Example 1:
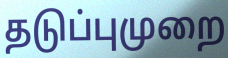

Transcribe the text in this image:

தடுப்புமுறை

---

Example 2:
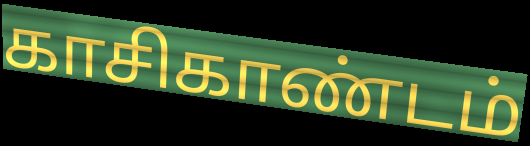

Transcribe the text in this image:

காசிகாண்டம்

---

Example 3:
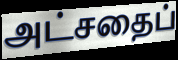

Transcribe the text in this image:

அட்சதைப்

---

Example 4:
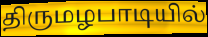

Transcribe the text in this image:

திருமழபாடியில்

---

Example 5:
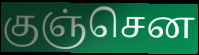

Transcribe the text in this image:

குஞ்சென